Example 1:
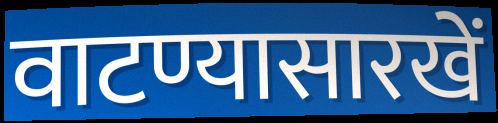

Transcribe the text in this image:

वाटण्यासारखें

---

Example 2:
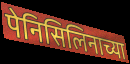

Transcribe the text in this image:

पेनिसिलिनाच्या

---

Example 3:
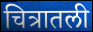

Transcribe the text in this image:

चित्रातली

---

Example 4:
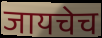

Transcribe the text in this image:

जायचेच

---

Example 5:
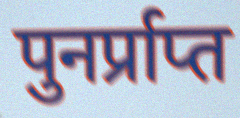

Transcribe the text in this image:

पुनर्प्राप्त